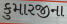
કુમારજીના